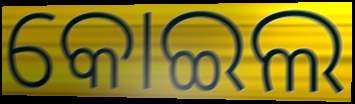
କୋଇଲ